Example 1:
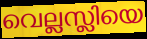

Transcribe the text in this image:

വെല്ലസ്ലിയെ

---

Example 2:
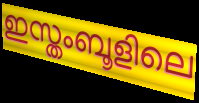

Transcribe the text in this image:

ഇസ്തംബൂളിലെ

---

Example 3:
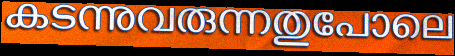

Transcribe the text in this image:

കടന്നുവരുന്നതുപോലെ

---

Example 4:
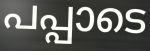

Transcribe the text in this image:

പപ്പാടെ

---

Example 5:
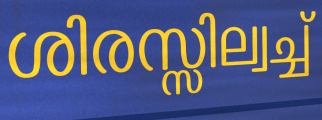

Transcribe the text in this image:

ശിരസ്സില്വച്ച്